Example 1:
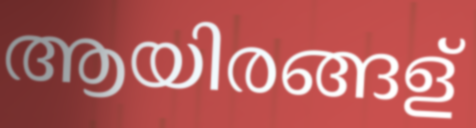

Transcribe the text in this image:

ആയിരങ്ങള്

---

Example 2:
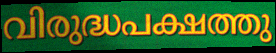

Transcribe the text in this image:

വിരുദ്ധപക്ഷത്തു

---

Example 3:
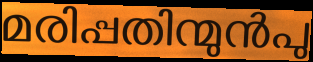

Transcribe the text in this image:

മരിപ്പതിന്മുൻപു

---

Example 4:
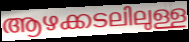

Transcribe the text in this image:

ആഴക്കടലിലുള്ള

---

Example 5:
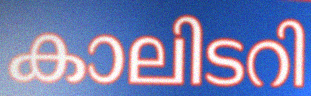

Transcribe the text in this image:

കാലിടറി